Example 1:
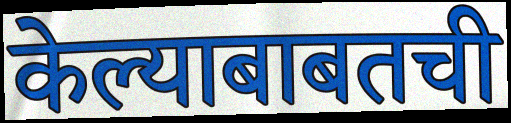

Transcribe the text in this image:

केल्याबाबतची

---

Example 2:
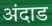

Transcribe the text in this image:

अंदाड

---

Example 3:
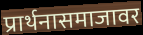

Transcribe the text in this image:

प्रार्थनासमाजावर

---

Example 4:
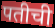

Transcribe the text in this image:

पतीची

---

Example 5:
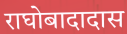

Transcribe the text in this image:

राघोबादादास